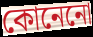
কোনেনো